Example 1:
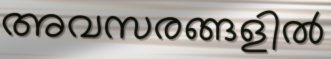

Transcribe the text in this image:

അവസരങ്ങളിൽ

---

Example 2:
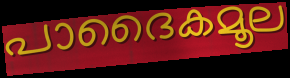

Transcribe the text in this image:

പാദൈകമൂല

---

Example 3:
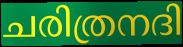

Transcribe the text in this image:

ചരിത്രനദി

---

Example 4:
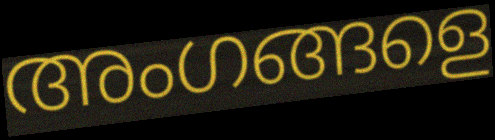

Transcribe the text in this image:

അംഗങ്ങളെ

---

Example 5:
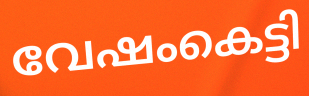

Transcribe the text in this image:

വേഷംകെട്ടി